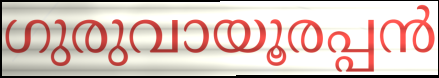
ഗുരുവായൂരപ്പൻ